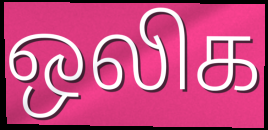
ஒலிக